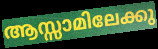
ആസ്സാമിലേക്കു